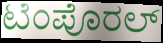
ಟೆಂಪೊರಲ್